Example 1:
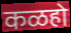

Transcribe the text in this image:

कळहो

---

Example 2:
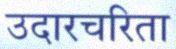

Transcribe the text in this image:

उदारचरिता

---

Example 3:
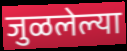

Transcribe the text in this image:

जुळलेल्या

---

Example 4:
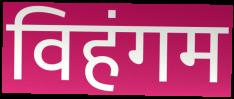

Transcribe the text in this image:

विहंगम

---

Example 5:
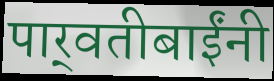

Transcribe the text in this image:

पार्वतीबाईंनी